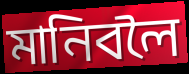
মানিবলৈ